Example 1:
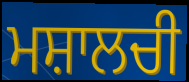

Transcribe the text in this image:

ਮਸ਼ਾਲਚੀ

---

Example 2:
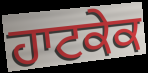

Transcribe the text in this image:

ਹਾਟਕੇਕ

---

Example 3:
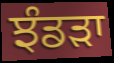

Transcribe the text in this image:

ਝੰਡੜਾ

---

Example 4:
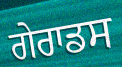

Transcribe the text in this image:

ਗੇਰਾਡਸ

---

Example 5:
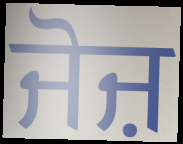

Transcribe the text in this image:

ਜੋਜ਼